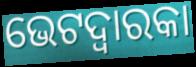
ଭେଟଦ୍ୱାରକା